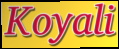
Koyali